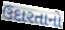
ઉદારતાનો